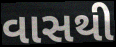
વાસથી